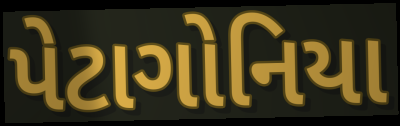
પેટાગોનિયા